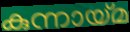
കുന്നായ്മ